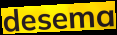
desema